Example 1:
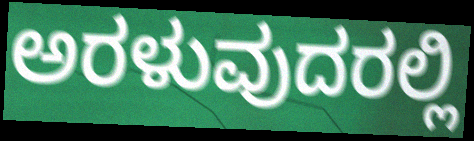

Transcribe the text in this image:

ಅರಳುವುದರಲ್ಲಿ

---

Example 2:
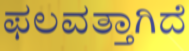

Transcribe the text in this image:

ಫಲವತ್ತಾಗಿದೆ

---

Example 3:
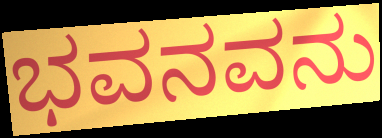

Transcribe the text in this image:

ಭವನವನು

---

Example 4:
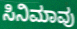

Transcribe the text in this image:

ಸಿನಿಮಾವು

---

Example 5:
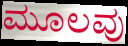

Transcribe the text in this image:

ಮೂಲವು